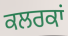
ਕਲਰਕਾਂ